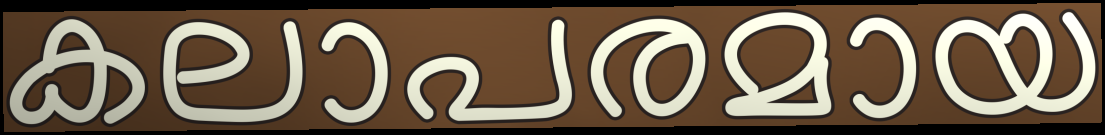
കലാപരമായ